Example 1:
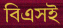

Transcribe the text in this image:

বিএসই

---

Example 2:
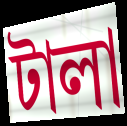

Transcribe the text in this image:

টালা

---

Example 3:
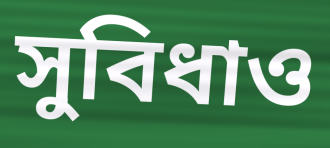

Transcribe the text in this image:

সুবিধাও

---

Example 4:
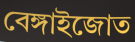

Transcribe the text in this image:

বেঙ্গাইজোত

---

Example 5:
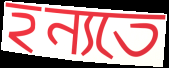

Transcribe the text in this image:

হন্যতে